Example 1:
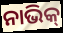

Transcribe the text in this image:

ନାଭିକ୍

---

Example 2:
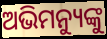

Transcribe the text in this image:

ଅଭିମନ୍ୟୁଙ୍କୁ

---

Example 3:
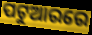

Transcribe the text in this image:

ପଟୁଆରରେ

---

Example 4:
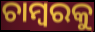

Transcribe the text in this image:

ଚାମ୍ବରକୁ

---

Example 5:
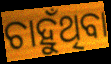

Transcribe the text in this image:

ଚାହୁଁଥିବା